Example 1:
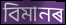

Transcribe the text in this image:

বিমানৰ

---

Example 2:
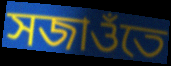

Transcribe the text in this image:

সজাওঁতে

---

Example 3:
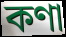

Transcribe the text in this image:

কণা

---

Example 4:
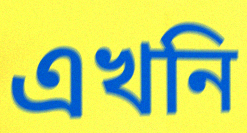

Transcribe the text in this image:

এখনি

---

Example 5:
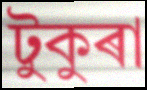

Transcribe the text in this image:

টুকুৰা